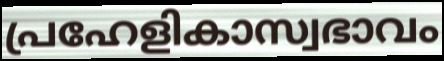
പ്രഹേളികാസ്വഭാവം